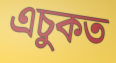
এচুকত